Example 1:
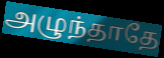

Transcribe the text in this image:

அழுந்தாதே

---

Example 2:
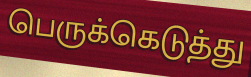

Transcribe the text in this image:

பெருக்கெடுத்து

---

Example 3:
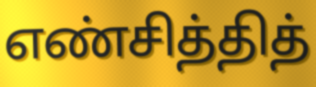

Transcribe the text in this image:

எண்சித்தித்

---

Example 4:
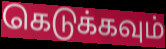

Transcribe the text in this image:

கெடுக்கவும்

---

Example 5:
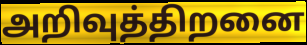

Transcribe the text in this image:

அறிவுத்திறனை